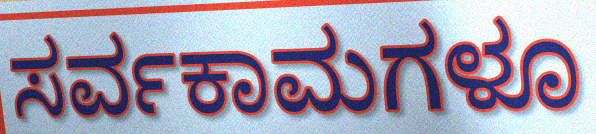
ಸರ್ವಕಾಮಗಳೂ